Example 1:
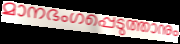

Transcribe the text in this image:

മാനഭംഗപ്പെടുത്താനും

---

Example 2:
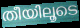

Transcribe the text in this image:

തീയിലൂടെ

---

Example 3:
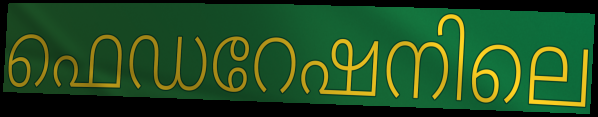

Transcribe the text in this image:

ഫെഡറേഷനിലെ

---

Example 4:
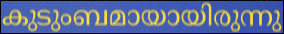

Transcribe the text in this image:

കുടുംബമായായിരുന്നു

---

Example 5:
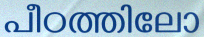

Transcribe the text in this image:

പീഠത്തിലോ